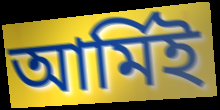
আর্মিই